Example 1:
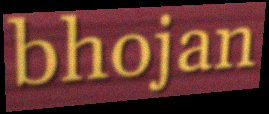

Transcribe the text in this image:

bhojan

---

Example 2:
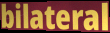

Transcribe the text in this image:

bilateral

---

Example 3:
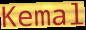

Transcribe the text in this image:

Kemal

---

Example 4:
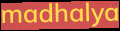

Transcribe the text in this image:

madhalya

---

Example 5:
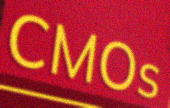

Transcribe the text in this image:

CMOs